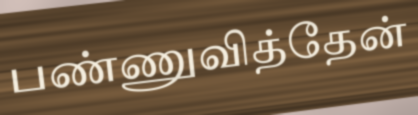
பண்ணுவித்தேன்